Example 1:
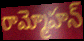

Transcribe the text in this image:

రామ్మోహన్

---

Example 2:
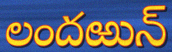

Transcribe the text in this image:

లందఱున్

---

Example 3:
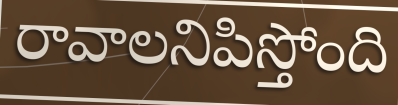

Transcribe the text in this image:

రావాలనిపిస్తోంది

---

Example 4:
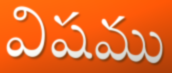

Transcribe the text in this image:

విషము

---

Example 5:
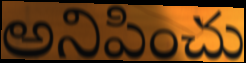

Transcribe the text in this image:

అనిపించు